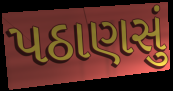
પઠાણસું